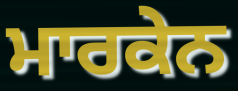
ਮਾਰਕੇਨ